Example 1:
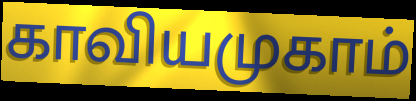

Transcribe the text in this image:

காவியமுகாம்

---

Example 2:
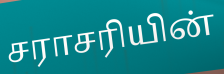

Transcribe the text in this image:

சராசரியின்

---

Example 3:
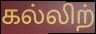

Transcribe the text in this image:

கல்லிற்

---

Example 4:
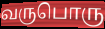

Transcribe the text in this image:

வருபொரு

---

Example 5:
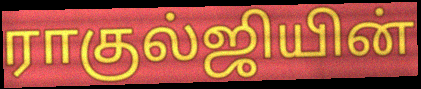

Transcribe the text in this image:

ராகுல்ஜியின்